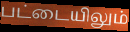
பட்டையிலும்